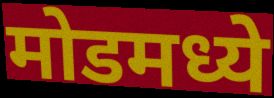
मोडमध्ये